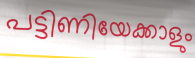
പട്ടിണിയേക്കാളും